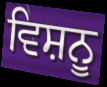
ਵਿਸ਼ਨੂ